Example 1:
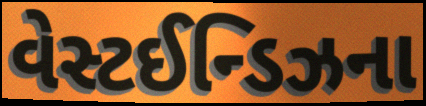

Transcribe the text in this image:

વેસ્ટઈન્ડિઝના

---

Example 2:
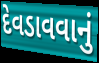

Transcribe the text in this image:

દેવડાવવાનું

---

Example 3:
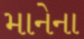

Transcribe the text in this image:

માનેના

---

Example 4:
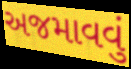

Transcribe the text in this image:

અજમાવવું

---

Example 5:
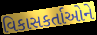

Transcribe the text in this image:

વિકાસકર્તાઓને